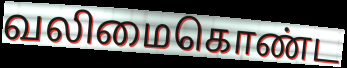
வலிமைகொண்ட